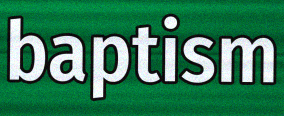
baptism